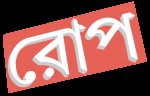
রোপ